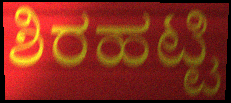
ಶಿರಹಟ್ಟಿ